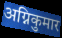
अग्निकुमार